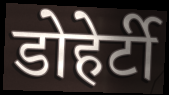
डोहेर्टी